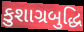
કુશાગ્રબુદ્ધિ